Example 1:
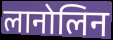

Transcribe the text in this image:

लानोलिन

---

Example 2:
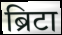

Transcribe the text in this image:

ब्रिटा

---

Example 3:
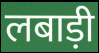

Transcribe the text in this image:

लबाड़ी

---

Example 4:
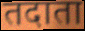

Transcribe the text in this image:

तदाता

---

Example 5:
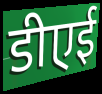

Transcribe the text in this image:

डीएई